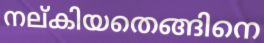
നല്കിയതെങ്ങിനെ